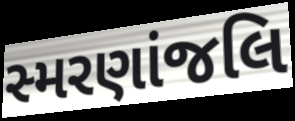
સ્મરણાંજલિ